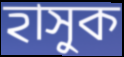
হাসুক